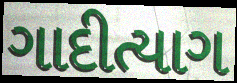
ગાદીત્યાગ